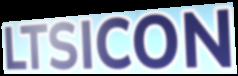
LTSICON